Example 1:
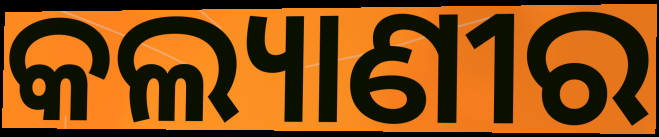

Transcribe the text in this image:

କଲ୍ୟାଣୀର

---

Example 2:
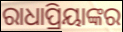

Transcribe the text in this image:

ରାଧାପ୍ରିୟାଙ୍କର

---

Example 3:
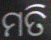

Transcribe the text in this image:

ମତି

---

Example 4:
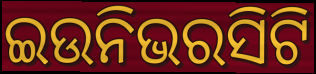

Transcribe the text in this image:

ଇଉନିଭରସିଟି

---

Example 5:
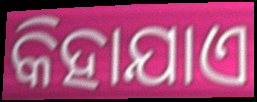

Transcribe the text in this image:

କିହାଯାଏ